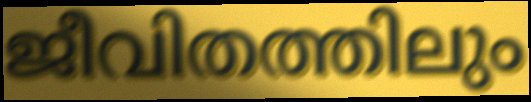
ജീവിതത്തിലും